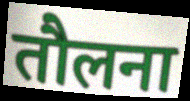
तौलना